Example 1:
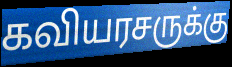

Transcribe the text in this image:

கவியரசருக்கு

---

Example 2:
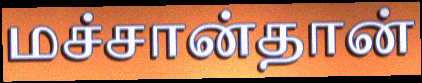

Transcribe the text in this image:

மச்சான்தான்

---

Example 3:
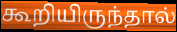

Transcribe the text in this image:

கூறியிருந்தால்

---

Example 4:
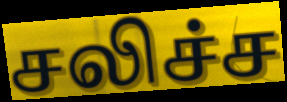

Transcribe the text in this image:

சலிச்ச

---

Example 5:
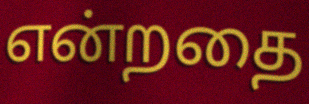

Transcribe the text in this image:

என்றதை